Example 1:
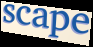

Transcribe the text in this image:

scape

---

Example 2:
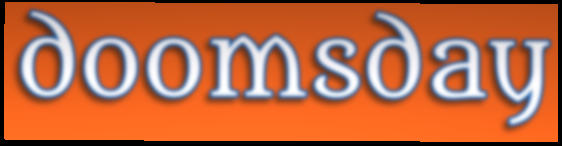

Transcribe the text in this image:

doomsday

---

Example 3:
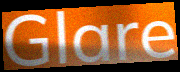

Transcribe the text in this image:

Glare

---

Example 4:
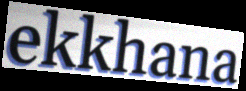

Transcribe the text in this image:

ekkhana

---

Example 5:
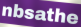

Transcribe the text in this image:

nbsathe